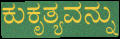
ಕುಕೃತ್ಯವನ್ನು